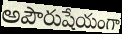
అపౌరుషేయంగా